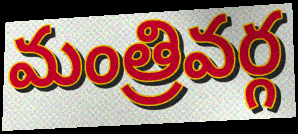
మంత్రివర్గ